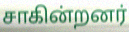
சாகின்றனர்